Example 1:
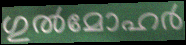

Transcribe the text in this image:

ഗുൽമോഹർ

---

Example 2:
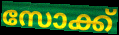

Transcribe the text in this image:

സോക്ക്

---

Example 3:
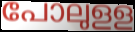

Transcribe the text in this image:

പോലുളള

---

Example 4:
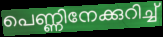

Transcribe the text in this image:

പെണ്ണിനേക്കുറിച്ച്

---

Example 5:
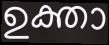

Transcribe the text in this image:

ഉക്താ